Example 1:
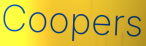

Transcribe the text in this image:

Coopers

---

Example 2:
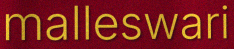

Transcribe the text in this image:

malleswari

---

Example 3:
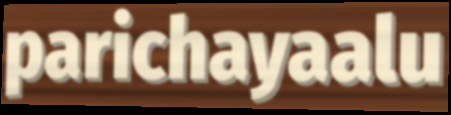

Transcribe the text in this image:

parichayaalu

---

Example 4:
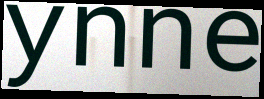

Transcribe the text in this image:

ynne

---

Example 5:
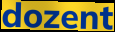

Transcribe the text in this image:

dozent